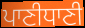
ਪਾਣੀਧਾਣੀ